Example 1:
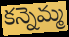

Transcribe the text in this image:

కన్నెమ్మ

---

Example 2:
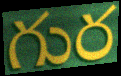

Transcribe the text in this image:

గుర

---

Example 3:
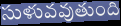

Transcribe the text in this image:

సుళువవుతుంది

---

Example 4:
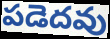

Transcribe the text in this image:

పడెదవు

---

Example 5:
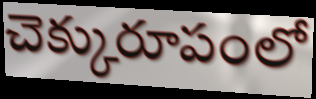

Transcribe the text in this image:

చెక్కురూపంలో